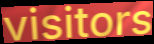
visitors